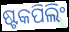
ଷ୍ଟକପିଲିଂ